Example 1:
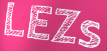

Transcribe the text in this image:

LEZs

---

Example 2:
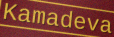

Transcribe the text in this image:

Kamadeva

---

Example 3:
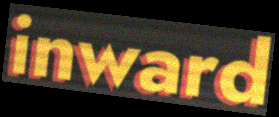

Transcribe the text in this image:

inward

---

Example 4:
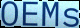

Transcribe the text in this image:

OEMs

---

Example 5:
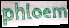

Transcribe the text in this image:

phloem